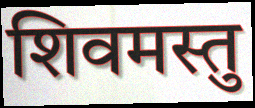
शिवमस्तु